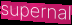
supernal